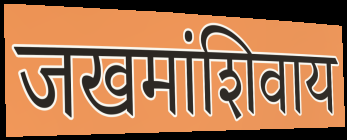
जखमांशिवाय